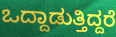
ಒದ್ದಾಡುತ್ತಿದ್ದರೆ